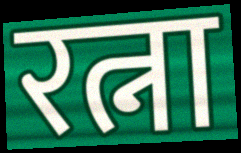
रत्ना